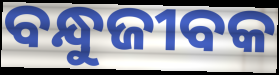
ବନ୍ଧୁଜୀବକ